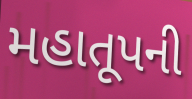
મહાતૂપની